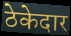
ठेकेदार